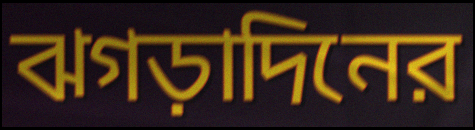
ঝগড়াদিনের